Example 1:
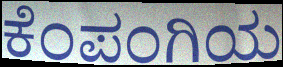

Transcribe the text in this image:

ಕೆಂಪಂಗಿಯ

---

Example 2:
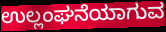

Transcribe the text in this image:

ಉಲ್ಲಂಘನೆಯಾಗುವ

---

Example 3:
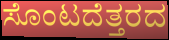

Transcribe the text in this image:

ಸೊಂಟದೆತ್ತರದ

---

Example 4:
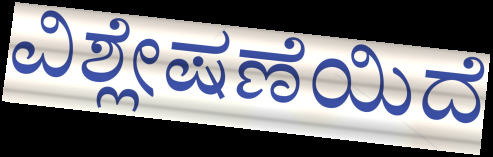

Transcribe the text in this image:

ವಿಶ್ಲೇಷಣೆಯಿದೆ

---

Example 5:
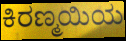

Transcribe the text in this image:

ಕಿರಣ್ಮಯಿಯ